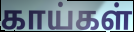
காய்கள்